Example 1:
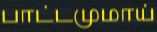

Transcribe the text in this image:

பாட்டமுமாய்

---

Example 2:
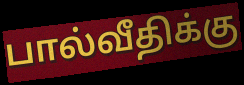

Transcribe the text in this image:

பால்வீதிக்கு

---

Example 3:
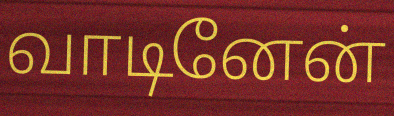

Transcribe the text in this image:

வாடினேன்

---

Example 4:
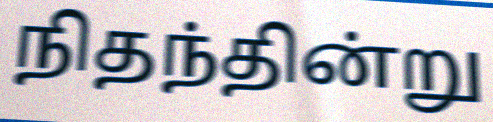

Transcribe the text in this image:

நிதந்தின்று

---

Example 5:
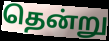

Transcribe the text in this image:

தென்று